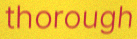
thorough